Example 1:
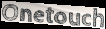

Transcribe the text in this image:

Onetouch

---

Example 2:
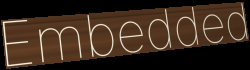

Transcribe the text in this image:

Embedded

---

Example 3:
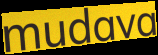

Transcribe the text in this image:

mudava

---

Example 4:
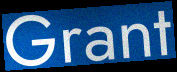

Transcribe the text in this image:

Grant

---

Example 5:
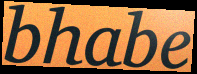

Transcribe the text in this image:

bhabe